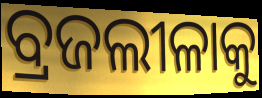
ବ୍ରଜଲୀଳାକୁ